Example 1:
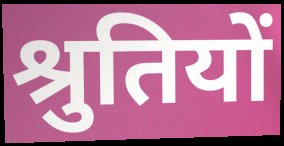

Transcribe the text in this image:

श्रुतियों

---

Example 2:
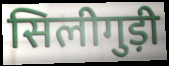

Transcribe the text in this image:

सिलीगुड़ी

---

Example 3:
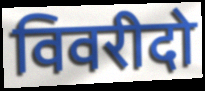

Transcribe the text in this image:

विवरीदो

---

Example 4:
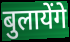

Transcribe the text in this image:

बुलायेंगे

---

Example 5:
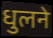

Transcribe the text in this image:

धुलने